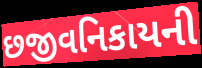
છજીવનિકાયની